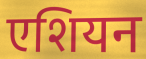
एशियन